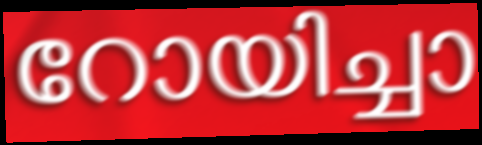
റോയിച്ചാ